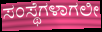
ಸಂಸ್ಥೆಗಳಾಗಲೀ